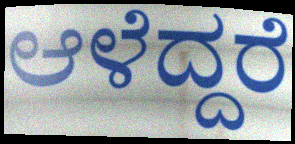
ಆಳೆದ್ದರೆ